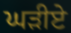
ਘੜੀਏ